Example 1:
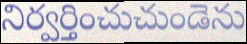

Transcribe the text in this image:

నిర్వర్తించుచుండెను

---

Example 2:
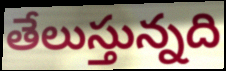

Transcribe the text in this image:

తేలుస్తున్నది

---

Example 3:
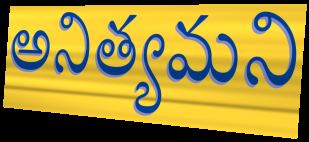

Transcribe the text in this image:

అనిత్యమని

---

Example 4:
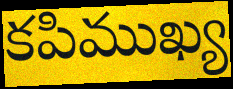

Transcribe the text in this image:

కపిముఖ్య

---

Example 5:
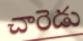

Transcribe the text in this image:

చారెడు